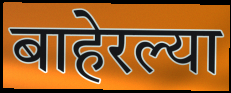
बाहेरल्या